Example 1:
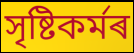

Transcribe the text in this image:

সৃষ্টিকৰ্মৰ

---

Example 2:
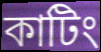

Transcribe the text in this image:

কাটিং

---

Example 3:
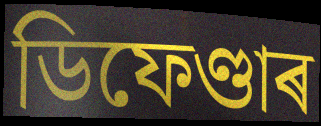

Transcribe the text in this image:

ডিফেণ্ডাৰ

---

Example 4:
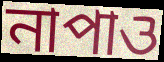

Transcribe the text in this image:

নাপাও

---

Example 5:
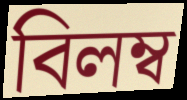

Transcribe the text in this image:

বিলম্ব